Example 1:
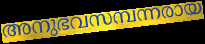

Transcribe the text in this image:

അനുഭവസമ്പന്നരായ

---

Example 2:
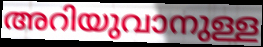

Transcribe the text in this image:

അറിയുവാനുള്ള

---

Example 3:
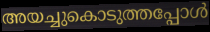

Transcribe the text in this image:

അയച്ചുകൊടുത്തപ്പോൾ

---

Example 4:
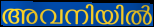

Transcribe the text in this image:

അവനിയിൽ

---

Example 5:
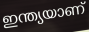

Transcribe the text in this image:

ഇന്ത്യയാണ്